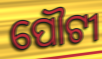
ପୌଟୀ